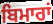
ਬਿਮਾਰਾਂ